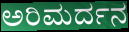
ಅರಿಮರ್ದನ